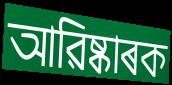
আৱিষ্কাৰক